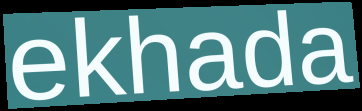
ekhada